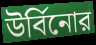
উর্বিনোর